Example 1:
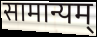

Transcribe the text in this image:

सामान्यम्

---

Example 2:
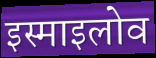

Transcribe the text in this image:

इस्माइलोव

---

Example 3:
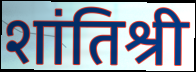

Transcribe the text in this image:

शांतिश्री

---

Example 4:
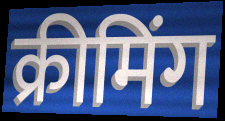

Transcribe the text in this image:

क्रीमिंग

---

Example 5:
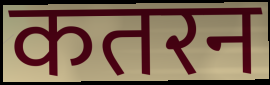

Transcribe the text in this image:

कतरन